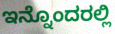
ಇನ್ನೊಂದರಲ್ಲಿ